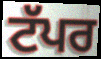
ਟੱਪਰ